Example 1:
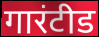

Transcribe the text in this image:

गारंटीड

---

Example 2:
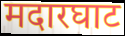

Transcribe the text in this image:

मदारघाट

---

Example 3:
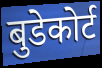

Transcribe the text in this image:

बुडेकोर्ट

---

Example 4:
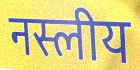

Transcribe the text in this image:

नस्लीय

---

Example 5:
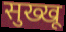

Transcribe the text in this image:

सुख्खू